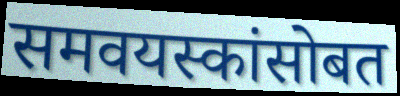
समवयस्कांसोबत